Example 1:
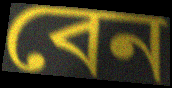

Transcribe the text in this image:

বেন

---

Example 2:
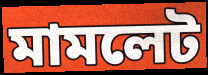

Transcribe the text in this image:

মামলেট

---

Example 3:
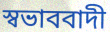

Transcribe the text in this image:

স্বভাববাদী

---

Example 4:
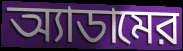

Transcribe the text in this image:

অ্যাডামের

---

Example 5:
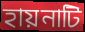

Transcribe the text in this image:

হায়নাটি